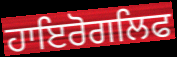
ਹਾਇਰੋਗਲਿਫ